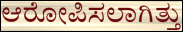
ಆರೋಪಿಸಲಾಗಿತ್ತು